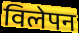
विलेपन